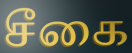
சீகை